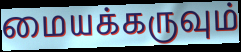
மையக்கருவும்